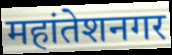
महांतेशनगर